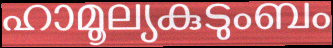
ഹാമൂല്യകുടുംബം